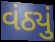
વંઠ્યું